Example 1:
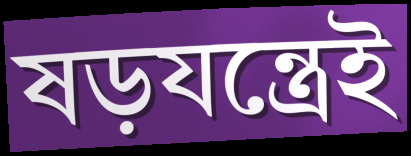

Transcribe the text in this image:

ষড়যন্ত্রেই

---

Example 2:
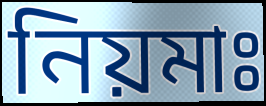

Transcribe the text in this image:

নিয়মাঃ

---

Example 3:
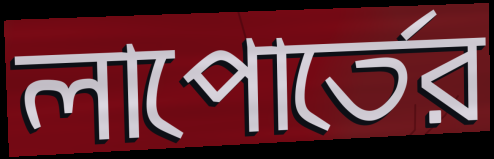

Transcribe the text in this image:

লাপোর্তের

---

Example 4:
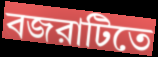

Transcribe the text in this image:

বজরাটিতে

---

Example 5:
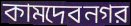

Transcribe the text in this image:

কামদেবনগর